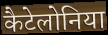
कैटेलोनिया